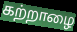
கற்றாழை